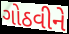
ગોઠવીને